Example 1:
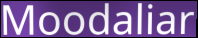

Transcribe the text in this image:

Moodaliar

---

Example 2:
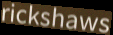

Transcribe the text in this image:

rickshaws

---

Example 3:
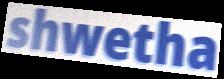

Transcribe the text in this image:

shwetha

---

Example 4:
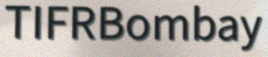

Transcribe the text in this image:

TIFRBombay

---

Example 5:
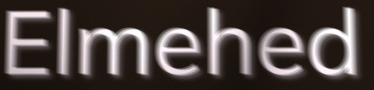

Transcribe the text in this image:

Elmehed